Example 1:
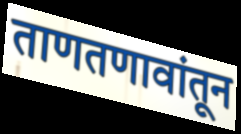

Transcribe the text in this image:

ताणतणावांतून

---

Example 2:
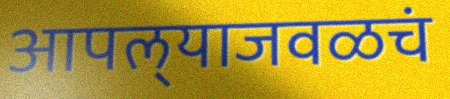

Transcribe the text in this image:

आपल्याजवळचं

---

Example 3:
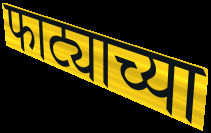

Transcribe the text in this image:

फाट्याच्या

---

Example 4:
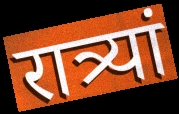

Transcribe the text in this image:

रात्र्यां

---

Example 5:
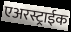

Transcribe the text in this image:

एअरस्ट्राईक